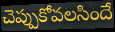
చెప్పుకోవలసిందే